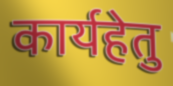
कार्यहेतु